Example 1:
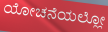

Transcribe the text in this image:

ಯೋಚನೆಯಲ್ಲೋ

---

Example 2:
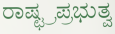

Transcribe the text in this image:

ರಾಷ್ಟ್ರಪ್ರಭುತ್ವ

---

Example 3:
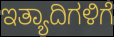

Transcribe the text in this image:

ಇತ್ಯಾದಿಗಳಿಗೆ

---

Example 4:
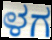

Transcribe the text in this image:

ಳಗ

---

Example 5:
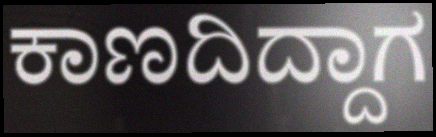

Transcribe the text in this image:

ಕಾಣದಿದ್ದಾಗ